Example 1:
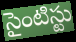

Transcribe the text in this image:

సైంటిస్టు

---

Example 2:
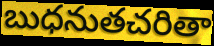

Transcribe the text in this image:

బుధనుతచరితా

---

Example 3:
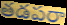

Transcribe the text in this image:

తడపరా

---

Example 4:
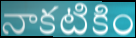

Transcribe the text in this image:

నాకటికిం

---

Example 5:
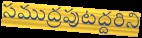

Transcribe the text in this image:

సముద్రపుటద్దరిని